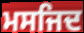
ਮਸਜਿਦ